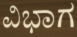
ವಿಭಾಗ